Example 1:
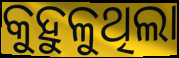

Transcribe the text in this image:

କୁହୁଳୁଥିଲା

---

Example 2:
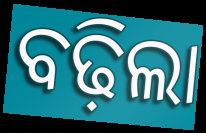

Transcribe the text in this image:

ବଢ଼ିଲା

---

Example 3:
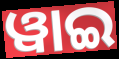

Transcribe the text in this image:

ୱାଇ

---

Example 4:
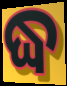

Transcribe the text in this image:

ଦ୍ଧ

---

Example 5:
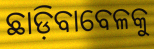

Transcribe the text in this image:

ଛାଡ଼ିବାବେଳକୁ